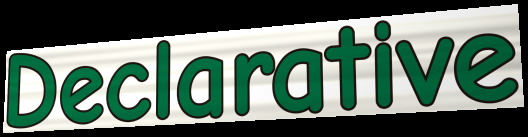
Declarative